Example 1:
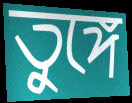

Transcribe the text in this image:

তুঙ্গে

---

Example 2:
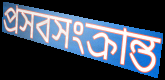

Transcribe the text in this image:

প্রসবসংক্রান্ত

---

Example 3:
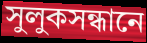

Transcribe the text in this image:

সুলুকসন্ধানে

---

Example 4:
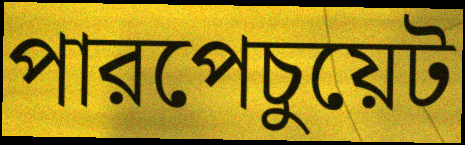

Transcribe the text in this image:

পারপেচুয়েট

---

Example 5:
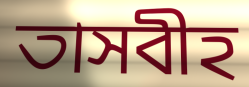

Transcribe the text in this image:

তাসবীহ